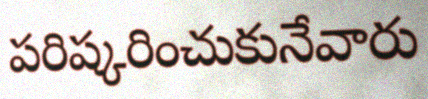
పరిష్కరించుకునేవారు